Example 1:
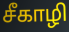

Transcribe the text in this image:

சீகாழி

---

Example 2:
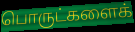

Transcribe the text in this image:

பொருட்களைக்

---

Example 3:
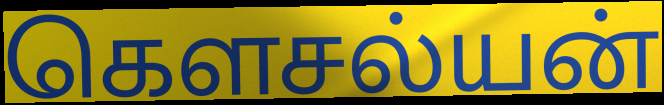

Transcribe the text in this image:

கௌசல்யன்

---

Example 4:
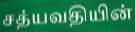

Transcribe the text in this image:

சத்யவதியின்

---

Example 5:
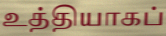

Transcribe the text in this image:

உத்தியாகப்